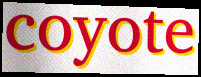
coyote